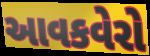
આવકવેરો